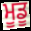
ਮੂਡੂ